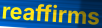
reaffirms